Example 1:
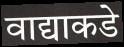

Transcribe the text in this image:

वाद्याकडे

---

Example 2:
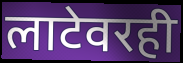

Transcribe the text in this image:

लाटेवरही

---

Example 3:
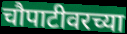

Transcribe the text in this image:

चौपाटीवरच्या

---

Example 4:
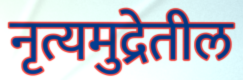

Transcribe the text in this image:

नृत्यमुद्रेतील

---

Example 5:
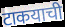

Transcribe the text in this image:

टाकयाची